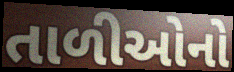
તાળીઓનો